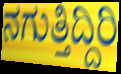
ನಗುತ್ತಿದ್ದಿರಿ